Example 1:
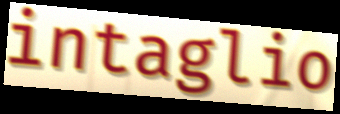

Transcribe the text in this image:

intaglio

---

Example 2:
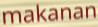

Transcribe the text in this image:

makanan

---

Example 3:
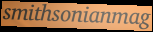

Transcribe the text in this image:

smithsonianmag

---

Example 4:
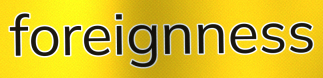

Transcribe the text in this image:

foreignness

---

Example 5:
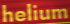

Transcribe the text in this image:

helium